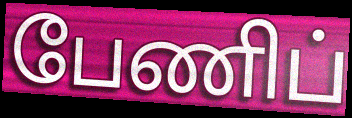
பேணிப்